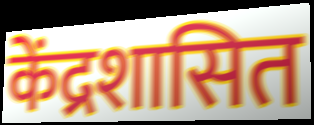
केंद्रशासित